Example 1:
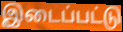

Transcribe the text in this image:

இடைப்பட்டு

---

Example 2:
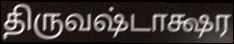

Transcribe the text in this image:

திருவஷ்டாக்ஷர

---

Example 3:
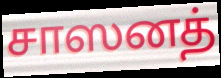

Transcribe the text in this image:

சாஸனத்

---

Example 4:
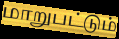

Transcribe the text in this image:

மாறுபட்டும்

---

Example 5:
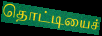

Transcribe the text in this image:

தொட்டியைச்